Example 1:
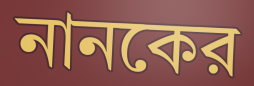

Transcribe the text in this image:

নানকের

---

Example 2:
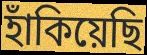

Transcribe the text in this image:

হাঁকিয়েছি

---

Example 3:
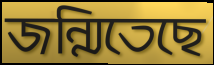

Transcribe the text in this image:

জন্মিতেছে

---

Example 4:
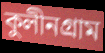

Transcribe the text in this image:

কুলীনগ্রাম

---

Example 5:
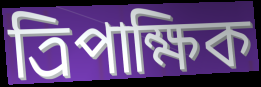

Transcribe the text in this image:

ত্রিপাক্ষিক